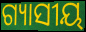
ଗ୍ୟାସୀୟ